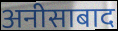
अनीसाबाद